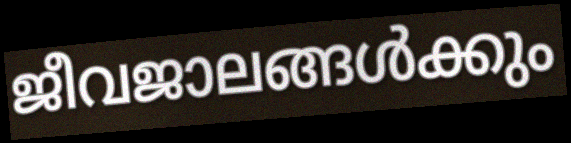
ജീവജാലങ്ങൾക്കും